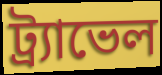
ট্র্যাভেল